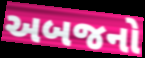
અબજનો